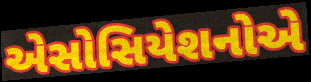
એસોસિયેશનોએ